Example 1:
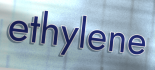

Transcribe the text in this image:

ethylene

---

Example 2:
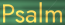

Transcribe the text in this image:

Psalm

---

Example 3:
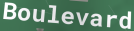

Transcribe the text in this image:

Boulevard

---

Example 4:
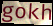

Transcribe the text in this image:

gokh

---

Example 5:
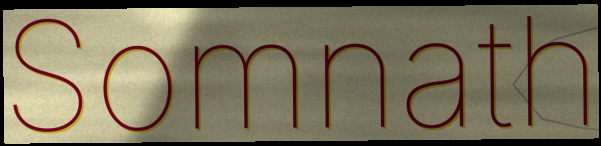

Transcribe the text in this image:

Somnath